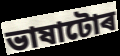
ভাষাটোৰ